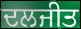
ਦਲਜੀਤ